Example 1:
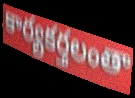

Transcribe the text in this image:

కార్యకర్తలంతా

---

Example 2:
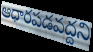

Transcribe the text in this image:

ఆధారపడవద్దని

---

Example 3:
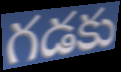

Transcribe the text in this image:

గడకు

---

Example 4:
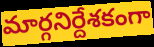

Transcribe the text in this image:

మార్గనిర్దేశకంగా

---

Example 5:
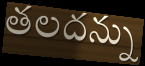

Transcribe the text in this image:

తలదన్ను